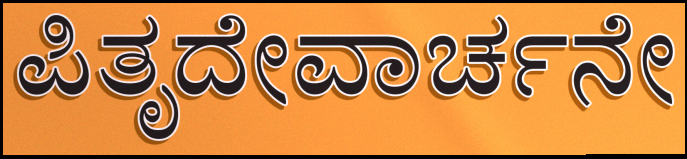
ಪಿತೃದೇವಾರ್ಚನೇ